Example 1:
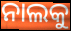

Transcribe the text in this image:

ନାଲକୁ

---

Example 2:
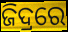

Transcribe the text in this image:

ଜିଦ୍ରରେ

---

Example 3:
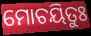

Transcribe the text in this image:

ମୋଚୟିତୁଃ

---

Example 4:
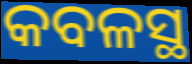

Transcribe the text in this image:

କବଳସ୍ଥ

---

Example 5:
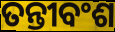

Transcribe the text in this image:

ତନ୍ତୀବଂଶ